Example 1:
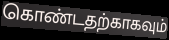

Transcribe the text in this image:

கொண்டதற்காகவும்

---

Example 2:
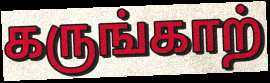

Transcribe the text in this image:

கருங்காற்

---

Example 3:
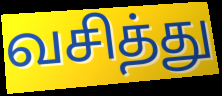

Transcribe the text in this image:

வசித்து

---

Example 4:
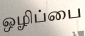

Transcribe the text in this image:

ஒழிப்பை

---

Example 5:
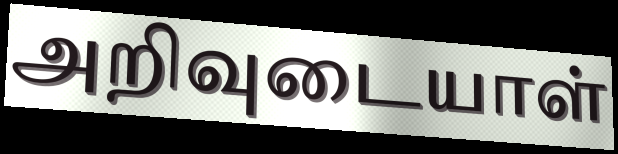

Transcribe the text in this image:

அறிவுடையாள்